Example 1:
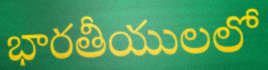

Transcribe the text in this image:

భారతీయులలో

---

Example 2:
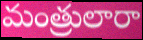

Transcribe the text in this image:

మంత్రులారా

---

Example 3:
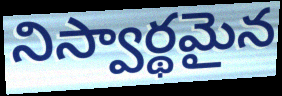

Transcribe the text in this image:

నిస్వార్థమైన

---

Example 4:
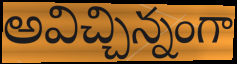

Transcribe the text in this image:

అవిచ్చిన్నంగా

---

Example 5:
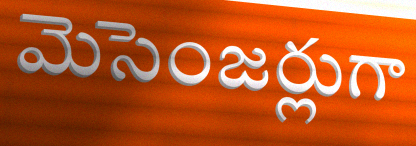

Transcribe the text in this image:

మెసెంజర్లుగా